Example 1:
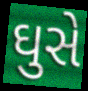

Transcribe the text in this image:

ઘુસે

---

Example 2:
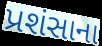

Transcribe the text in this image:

પ્રશંસાના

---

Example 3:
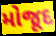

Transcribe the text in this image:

મોજૂદ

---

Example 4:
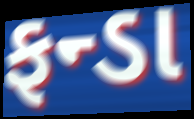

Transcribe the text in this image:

ફન્ડા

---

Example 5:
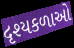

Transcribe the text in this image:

દૃશ્યકળાઓ